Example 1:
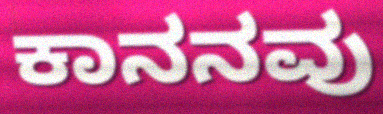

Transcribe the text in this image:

ಕಾನನವು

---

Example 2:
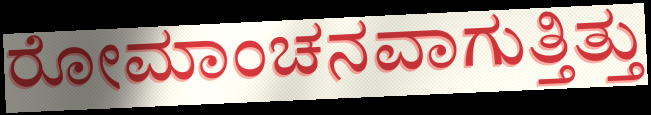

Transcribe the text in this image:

ರೋಮಾಂಚನವಾಗುತ್ತಿತ್ತು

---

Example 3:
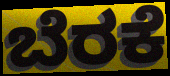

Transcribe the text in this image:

ಬೆರಕೆ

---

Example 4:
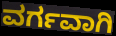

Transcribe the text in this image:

ವರ್ಗವಾಗಿ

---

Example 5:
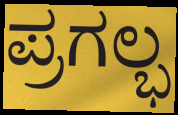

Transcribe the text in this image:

ಪ್ರಗಲ್ಭ